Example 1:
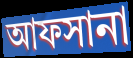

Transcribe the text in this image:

আফসানা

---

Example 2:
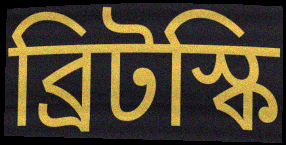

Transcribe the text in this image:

ব্রিটস্কি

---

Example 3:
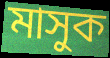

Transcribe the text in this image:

মাসুক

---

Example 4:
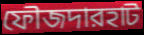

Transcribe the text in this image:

ফৌজদারহাট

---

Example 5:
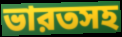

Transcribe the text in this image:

ভারতসহ